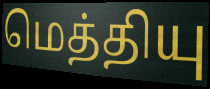
மெத்தியு